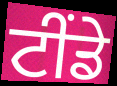
ਟੀਂਡੇ